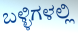
ಬಳ್ಳಿಗಳಲ್ಲಿ